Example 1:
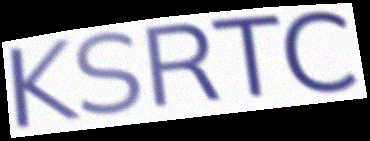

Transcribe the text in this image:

KSRTC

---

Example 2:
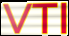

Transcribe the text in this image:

VTI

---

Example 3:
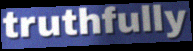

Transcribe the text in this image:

truthfully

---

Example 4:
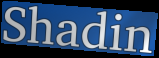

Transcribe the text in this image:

Shadin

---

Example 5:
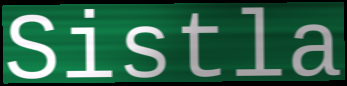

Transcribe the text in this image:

Sistla